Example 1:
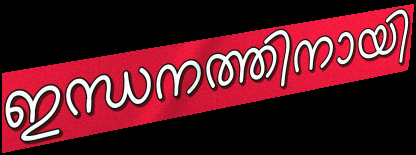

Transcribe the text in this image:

ഇന്ധനത്തിനായി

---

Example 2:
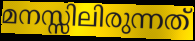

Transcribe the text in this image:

മനസ്സിലിരുന്നത്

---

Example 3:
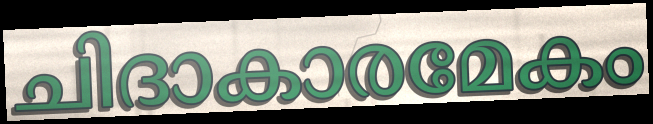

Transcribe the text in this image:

ചിദാകാരമേകം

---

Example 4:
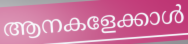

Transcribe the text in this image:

ആനകളേക്കാൾ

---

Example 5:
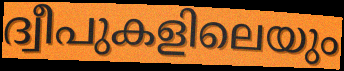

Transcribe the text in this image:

ദ്വീപുകളിലെയും